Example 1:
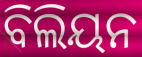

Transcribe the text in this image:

ବିଲିୟନ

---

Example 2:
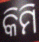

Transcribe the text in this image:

କିମି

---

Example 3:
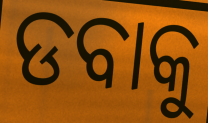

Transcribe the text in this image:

ଡବାକୁ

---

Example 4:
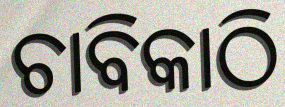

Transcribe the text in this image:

ଚାବିକାଠି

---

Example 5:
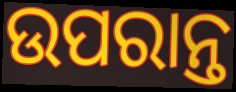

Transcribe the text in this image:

ଉପରାନ୍ତ